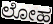
ಲೋಹ